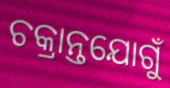
ଚକ୍ରାନ୍ତଯୋଗୁଁ